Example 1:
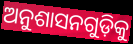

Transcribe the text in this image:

ଅନୁଶାସନଗୁଡ଼ିକୁ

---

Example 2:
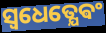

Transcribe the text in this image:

ସ୍ଵଧେତ୍ଯେଵଂ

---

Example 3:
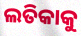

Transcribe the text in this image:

ଲତିକାକୁ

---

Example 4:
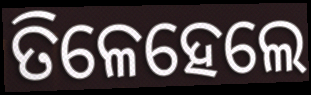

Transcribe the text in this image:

ତିଳେହେଲେ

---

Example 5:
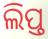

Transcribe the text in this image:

ଲିପ୍ତ